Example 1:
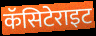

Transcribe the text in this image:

कॅसिटेराइट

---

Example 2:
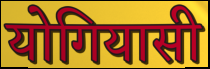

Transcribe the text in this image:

योगियासी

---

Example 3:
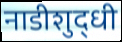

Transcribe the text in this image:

नाडीशुद्धी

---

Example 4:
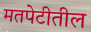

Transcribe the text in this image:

मतपेटीतील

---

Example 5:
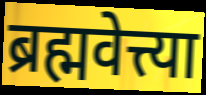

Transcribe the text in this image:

ब्रह्मवेत्त्या